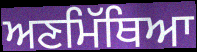
ਅਣਮਿੱਥਿਆ